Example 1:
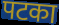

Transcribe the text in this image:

पटका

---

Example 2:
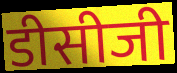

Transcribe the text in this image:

डीसीजी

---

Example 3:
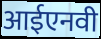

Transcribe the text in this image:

आईएनवी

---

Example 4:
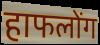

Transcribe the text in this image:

हाफलोंग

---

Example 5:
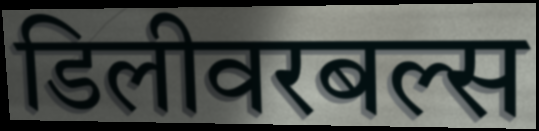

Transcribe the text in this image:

डिलीवरबल्स